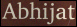
Abhijat